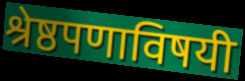
श्रेष्ठपणाविषयी